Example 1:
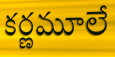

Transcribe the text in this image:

కర్ణమూలే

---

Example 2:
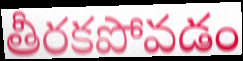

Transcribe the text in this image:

తీరకపోవడం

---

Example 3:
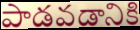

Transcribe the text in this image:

పాడవడానికి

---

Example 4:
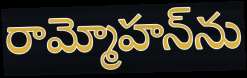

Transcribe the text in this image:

రామ్మోహన్‌ను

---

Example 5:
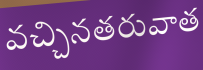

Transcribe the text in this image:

వచ్చినతరువాత